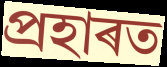
প্ৰহাৰত